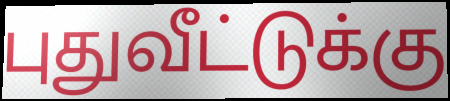
புதுவீட்டுக்கு